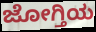
ಜೋಗ್ತಿಯ